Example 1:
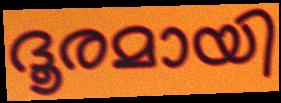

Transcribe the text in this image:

ദൂരമായി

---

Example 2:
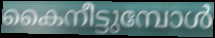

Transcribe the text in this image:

കൈനീട്ടുമ്പോൾ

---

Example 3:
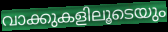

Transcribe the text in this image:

വാക്കുകളിലൂടെയും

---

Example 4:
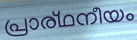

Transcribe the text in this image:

പ്രാര്ഥനീയം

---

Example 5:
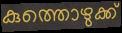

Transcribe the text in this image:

കുത്തൊഴുക്ക്